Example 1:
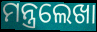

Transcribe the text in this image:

ମନ୍ତ୍ରଲେଖା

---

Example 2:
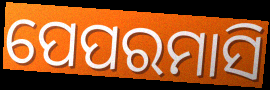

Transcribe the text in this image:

ପେପରମାସି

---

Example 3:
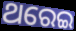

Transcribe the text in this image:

ଥରେଇ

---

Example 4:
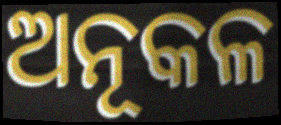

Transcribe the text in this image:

ଅନୂକଳ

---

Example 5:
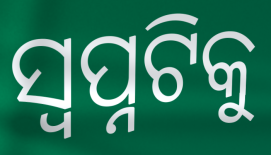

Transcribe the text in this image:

ସ୍ୱପ୍ନଟିକୁ